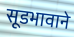
सूडभावाने